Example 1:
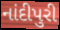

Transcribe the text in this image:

નાંદીપુરી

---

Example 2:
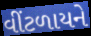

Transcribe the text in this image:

વીંટળાયને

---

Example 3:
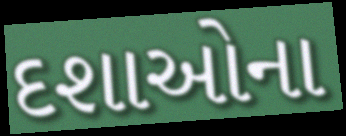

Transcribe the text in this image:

દશાઓના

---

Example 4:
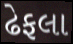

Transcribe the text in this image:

ઢેફલા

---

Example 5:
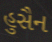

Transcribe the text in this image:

હુસૈન